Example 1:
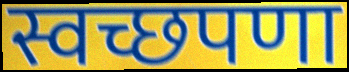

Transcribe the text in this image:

स्वच्छपणा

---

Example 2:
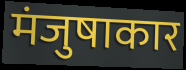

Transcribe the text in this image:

मंजुषाकार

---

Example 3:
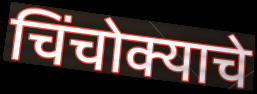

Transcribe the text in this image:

चिंचोक्याचे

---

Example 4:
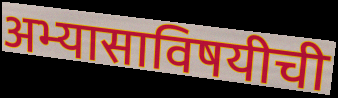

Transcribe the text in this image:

अभ्यासाविषयीची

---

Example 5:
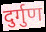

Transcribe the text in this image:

दुर्गुण